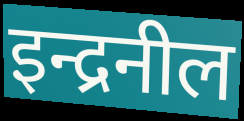
इन्द्रनील